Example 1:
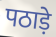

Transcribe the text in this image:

पठाड़े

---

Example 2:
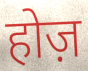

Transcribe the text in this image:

होज़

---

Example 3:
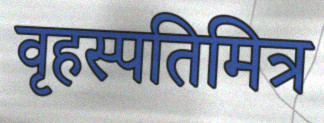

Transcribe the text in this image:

वृहस्पतिमित्र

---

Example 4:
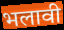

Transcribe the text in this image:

भलावी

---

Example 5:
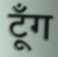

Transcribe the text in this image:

टूँग